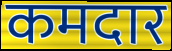
कमदार